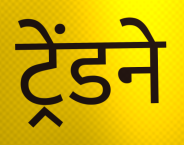
ट्रेंडने